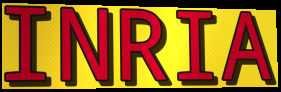
INRIA